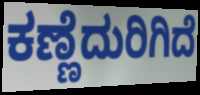
ಕಣ್ಣೆದುರಿಗಿದೆ